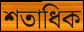
শতাধিক